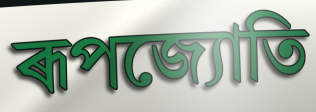
ৰূপজ্যোতি